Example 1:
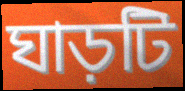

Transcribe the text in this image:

ঘাড়টি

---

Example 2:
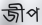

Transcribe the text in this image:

জীপ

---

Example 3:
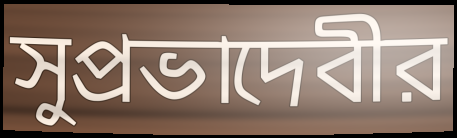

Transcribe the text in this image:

সুপ্রভাদেবীর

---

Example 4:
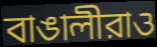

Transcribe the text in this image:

বাঙালীরাও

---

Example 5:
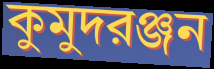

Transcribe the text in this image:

কুমুদরঞ্জন